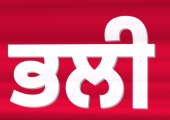
ਭਲੀ